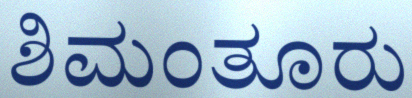
ಶಿಮಂತೂರು